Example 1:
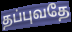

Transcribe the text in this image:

தப்புவதே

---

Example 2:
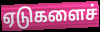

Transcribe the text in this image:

ஏடுகளைச்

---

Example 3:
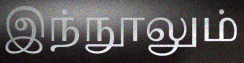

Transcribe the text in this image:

இந்நூலும்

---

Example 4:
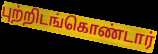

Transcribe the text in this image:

புற்றிடங்கொண்டார்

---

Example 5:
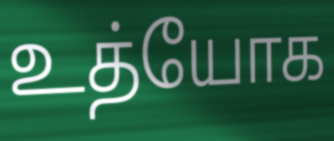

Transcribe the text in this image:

உத்யோக